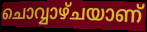
ചൊവ്വാഴ്ചയാണ്